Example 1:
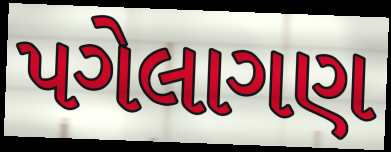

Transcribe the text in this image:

પગેલાગણ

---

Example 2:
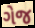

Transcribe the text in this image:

ગેજ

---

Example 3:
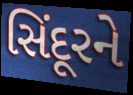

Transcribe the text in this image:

સિંદૂરને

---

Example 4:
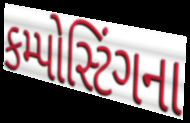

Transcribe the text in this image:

કમ્પોસ્ટિંગના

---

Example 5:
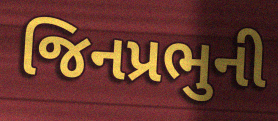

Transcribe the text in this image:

જિનપ્રભુની